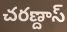
చరణ్దాస్